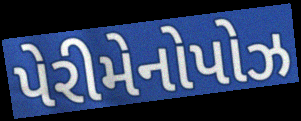
પેરીમેનોપોઝ